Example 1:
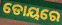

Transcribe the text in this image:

ଡୋୟରେ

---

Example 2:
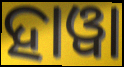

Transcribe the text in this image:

ହାୱା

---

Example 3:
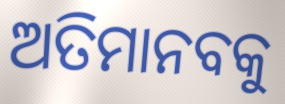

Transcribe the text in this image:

ଅତିମାନବକୁ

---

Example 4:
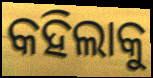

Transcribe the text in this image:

କହିଲାକୁ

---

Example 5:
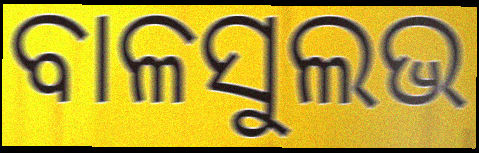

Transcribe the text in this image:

ବାଳସୁଲଭ